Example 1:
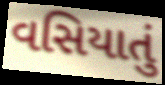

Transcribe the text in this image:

વસિયાતું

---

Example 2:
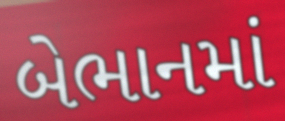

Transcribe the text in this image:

બેભાનમાં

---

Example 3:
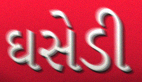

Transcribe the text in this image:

ઘસેડી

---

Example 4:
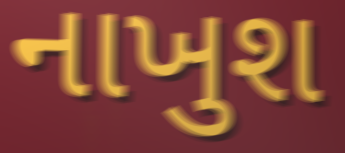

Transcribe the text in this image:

નાખુશ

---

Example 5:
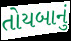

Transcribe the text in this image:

તોયબાનું